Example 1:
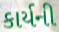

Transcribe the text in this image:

કાર્યની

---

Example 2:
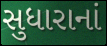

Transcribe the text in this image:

સુધારાનાં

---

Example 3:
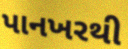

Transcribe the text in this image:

પાનખરથી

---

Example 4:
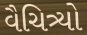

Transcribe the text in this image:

વૈચિત્ર્યો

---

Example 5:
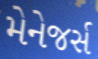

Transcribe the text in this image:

મેનેજર્સ